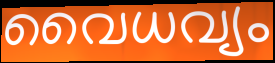
വൈധവ്യം